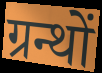
ग्रन्थों